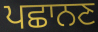
ਪਛਾਨਣ